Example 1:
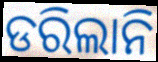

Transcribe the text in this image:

ଡରିଲାନି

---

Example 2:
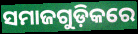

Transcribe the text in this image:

ସମାଜଗୁଡ଼ିକରେ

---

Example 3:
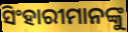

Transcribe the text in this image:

ସିଂହାରୀମାନଙ୍କୁ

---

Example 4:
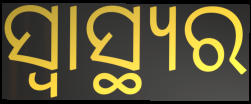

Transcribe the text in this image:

ସ୍ବାସ୍ଥ୍ୟର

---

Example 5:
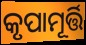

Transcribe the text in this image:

କୃପାମୂର୍ତ୍ତି